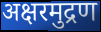
अक्षरमुद्रण